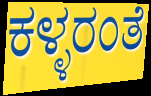
ಕಳ್ಳರಂತೆ